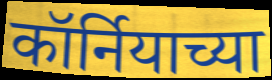
कॉर्नियाच्या